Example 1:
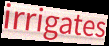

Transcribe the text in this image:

irrigates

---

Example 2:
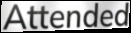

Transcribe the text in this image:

Attended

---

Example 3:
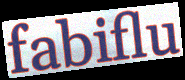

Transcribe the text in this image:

fabiflu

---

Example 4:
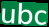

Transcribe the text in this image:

ubc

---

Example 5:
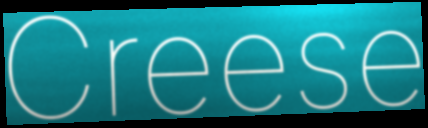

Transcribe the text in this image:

Creese